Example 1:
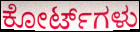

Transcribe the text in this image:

ಕೋರ್ಟ್‌ಗಳು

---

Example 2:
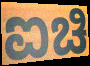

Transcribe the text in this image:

ಐಚಿ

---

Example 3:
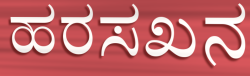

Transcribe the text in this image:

ಹರಸಖನ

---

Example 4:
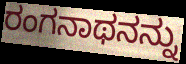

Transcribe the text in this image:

ರಂಗನಾಥನನ್ನು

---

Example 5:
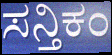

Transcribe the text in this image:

ಸನ್ತಿಕಂ